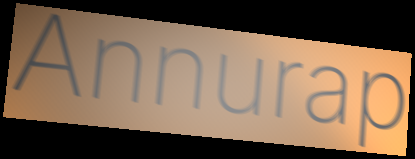
Annurap